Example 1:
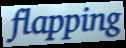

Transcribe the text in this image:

flapping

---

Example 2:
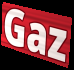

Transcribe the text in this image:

Gaz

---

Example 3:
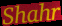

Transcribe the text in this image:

Shahr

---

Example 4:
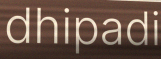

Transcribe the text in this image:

dhipadi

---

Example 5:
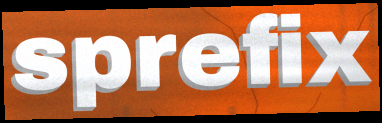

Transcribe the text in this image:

sprefix